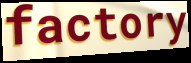
factory